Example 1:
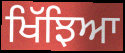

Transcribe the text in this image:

ਖਿੱਝਿਆ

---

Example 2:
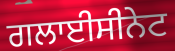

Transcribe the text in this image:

ਗਲਾਈਸੀਨੇਟ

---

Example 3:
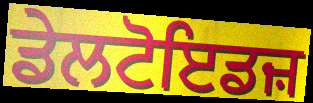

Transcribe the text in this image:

ਡੇਲਟੋਇਡਜ਼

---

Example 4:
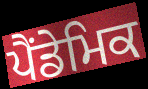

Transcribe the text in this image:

ਪੈਂਡੇਮਿਕ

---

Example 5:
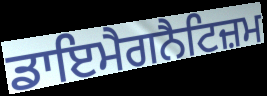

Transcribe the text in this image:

ਡਾਇਮੈਗਨੈਟਿਜ਼ਮ